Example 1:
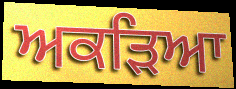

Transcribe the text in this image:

ਅਕੜਿਆ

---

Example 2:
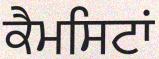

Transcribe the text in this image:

ਕੈਮਸਿਟਾਂ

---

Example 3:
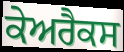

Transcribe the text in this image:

ਕੇਅਰੈਕਸ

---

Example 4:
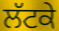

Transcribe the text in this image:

ਲੱਟਕੇ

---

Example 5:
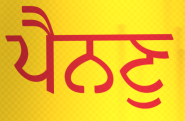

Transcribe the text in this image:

ਪੈਨਣੁ